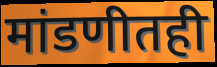
मांडणीतही